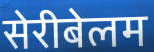
सेरीबेलम